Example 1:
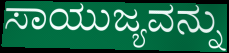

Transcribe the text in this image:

ಸಾಯುಜ್ಯವನ್ನು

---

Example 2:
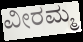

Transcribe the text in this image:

ವೀರಮ್ಮ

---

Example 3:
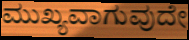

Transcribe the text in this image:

ಮುಖ್ಯವಾಗುವುದೇ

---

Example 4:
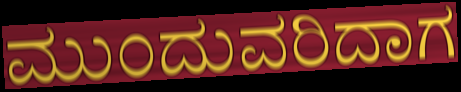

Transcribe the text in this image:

ಮುಂದುವರಿದಾಗ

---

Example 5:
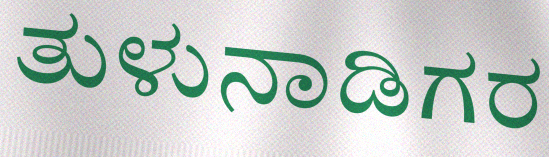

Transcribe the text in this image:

ತುಳುನಾಡಿಗರ